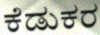
ಕೆಡುಕರ